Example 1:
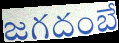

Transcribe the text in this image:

జగదంబే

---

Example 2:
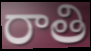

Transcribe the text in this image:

రాతి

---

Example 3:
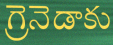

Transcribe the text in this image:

గ్రెనెడాకు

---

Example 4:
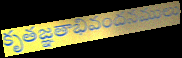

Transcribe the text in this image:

కృతజ్ఞతాభివందనములు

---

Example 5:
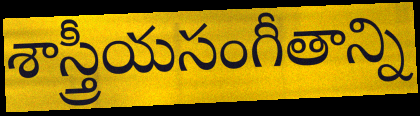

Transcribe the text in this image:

శాస్త్రీయసంగీతాన్ని